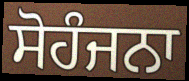
ਸੋਹੰਜਨਾ